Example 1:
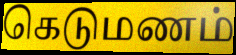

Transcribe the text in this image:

கெடுமணம்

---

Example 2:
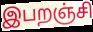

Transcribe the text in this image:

இபறஞ்சி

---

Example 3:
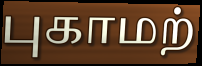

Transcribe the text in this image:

புகாமற்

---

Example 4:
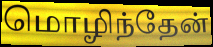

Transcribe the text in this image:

மொழிந்தேன்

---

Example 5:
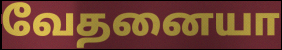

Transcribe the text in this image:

வேதனையா